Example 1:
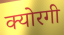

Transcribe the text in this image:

क्योरगी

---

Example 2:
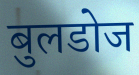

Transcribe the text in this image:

बुलडोज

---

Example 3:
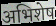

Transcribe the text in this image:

अभिशेष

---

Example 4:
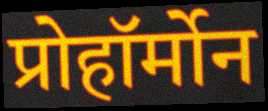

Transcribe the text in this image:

प्रोहॉर्मोन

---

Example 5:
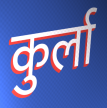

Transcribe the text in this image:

कुर्ला